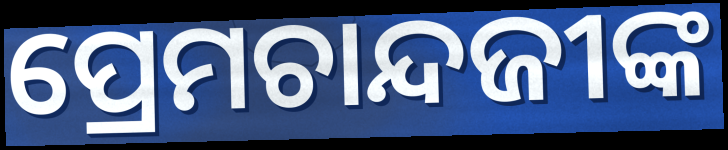
ପ୍ରେମଚାନ୍ଦଜୀଙ୍କ